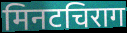
मिनटचिराग